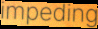
impeding